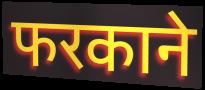
फरकाने